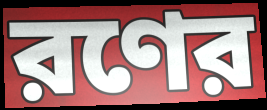
রণের